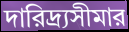
দারিদ্র্যসীমার